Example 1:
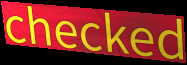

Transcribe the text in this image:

checked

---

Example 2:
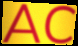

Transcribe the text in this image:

AC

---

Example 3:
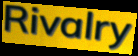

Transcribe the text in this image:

Rivalry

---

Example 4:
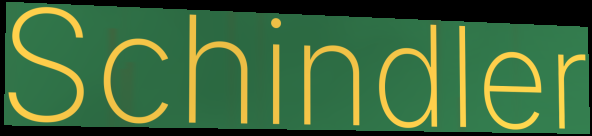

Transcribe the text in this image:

Schindler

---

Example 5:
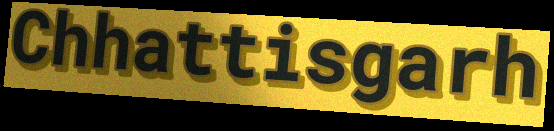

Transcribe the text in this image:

Chhattisgarh